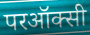
परऑक्सी